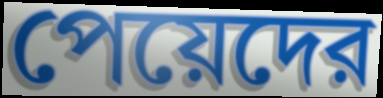
পেয়েদের